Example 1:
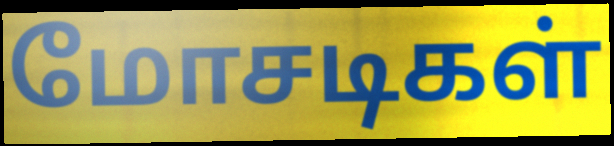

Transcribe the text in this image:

மோசடிகள்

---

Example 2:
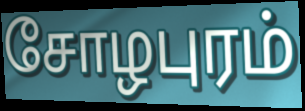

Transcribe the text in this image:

சோழபுரம்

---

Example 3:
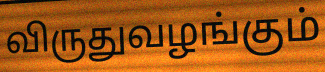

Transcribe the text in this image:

விருதுவழங்கும்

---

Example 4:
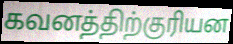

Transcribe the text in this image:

கவனத்திற்குரியன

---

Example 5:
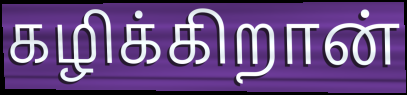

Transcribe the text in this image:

கழிக்கிறான்